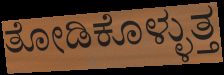
ತೋಡಿಕೊಳ್ಳುತ್ತ